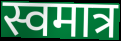
स्वमात्र